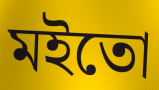
মইতো